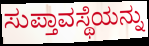
ಸುಪ್ತಾವಸ್ಥೆಯನ್ನು